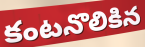
కంటనొలికిన